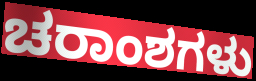
ಚರಾಂಶಗಳು